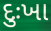
દુઃખા